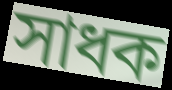
সাধক